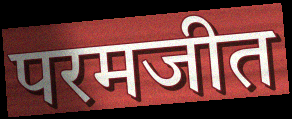
परमजीत